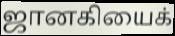
ஜானகியைக்